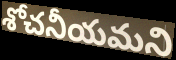
శోచనీయమని